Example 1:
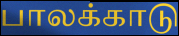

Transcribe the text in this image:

பாலக்காடு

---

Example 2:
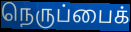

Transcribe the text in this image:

நெருப்பைக்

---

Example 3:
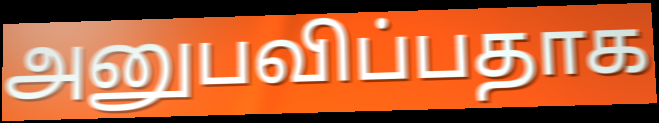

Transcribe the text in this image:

அனுபவிப்பதாக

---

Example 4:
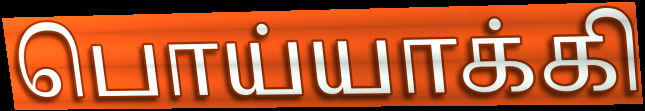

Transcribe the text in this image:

பொய்யாக்கி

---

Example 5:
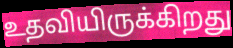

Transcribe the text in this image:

உதவியிருக்கிறது